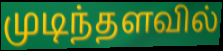
முடிந்தளவில்